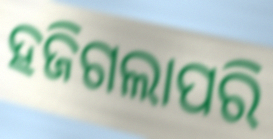
ହଜିଗଲାପରି